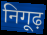
निगूढ़